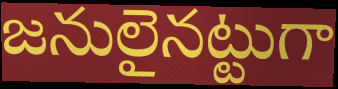
జనులైనట్టుగా